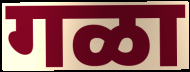
गळा